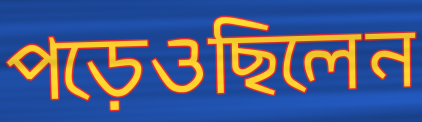
পড়েওছিলেন